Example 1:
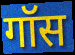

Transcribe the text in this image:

गॉस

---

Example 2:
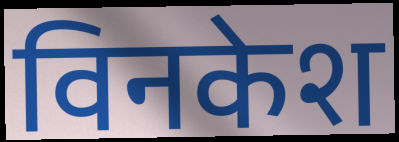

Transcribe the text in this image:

विनकेश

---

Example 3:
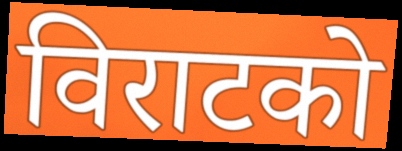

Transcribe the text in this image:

विराटको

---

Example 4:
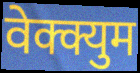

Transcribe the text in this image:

वेक्क्युम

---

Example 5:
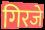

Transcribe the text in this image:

गिरजे